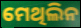
ମେଥିଲିନ